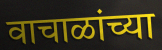
वाचाळांच्या